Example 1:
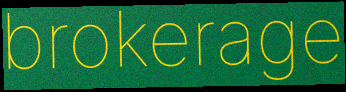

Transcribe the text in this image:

brokerage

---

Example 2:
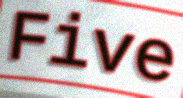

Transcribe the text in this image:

Five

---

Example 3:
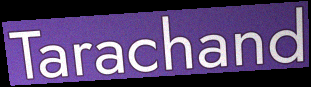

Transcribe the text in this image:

Tarachand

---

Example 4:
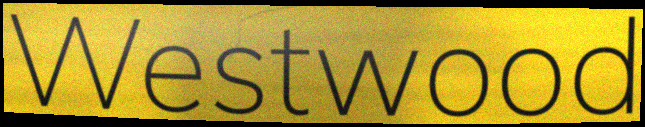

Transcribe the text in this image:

Westwood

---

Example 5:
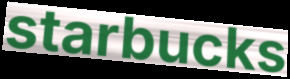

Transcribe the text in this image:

starbucks